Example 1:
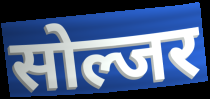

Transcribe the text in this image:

सोल्जर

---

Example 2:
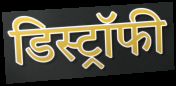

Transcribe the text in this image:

डिस्ट्रॉफी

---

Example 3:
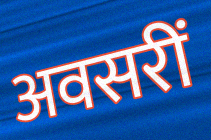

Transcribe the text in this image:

अवसरीं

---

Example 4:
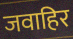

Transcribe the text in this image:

जवाहिर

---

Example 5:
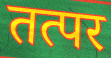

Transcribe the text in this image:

तत्पर